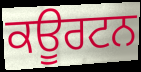
ਕਊਰਟਨ